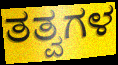
ತತ್ವಗಳ